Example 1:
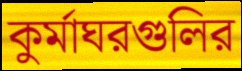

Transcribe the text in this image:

কুর্মাঘরগুলির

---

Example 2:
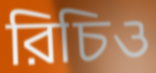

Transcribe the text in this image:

রিচিও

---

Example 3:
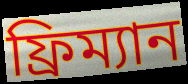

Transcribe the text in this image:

ফ্রিম্যান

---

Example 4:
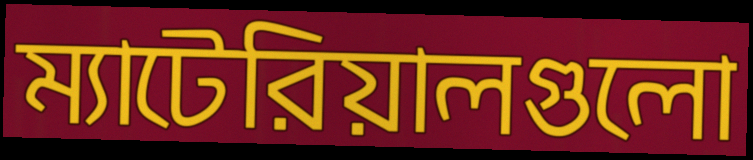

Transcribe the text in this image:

ম্যাটেরিয়ালগুলো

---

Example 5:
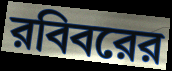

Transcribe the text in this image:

রবিবরের